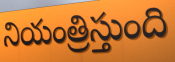
నియంత్రిస్తుంది